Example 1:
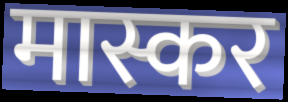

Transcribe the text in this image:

मास्कर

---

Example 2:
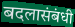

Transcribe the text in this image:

बदलासंबंधी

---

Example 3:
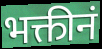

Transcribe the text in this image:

भक्तीनं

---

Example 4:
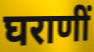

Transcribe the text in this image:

घराणीं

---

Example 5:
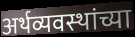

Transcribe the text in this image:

अर्थव्यवस्थांच्या